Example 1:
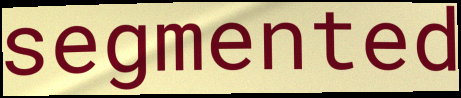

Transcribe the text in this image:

segmented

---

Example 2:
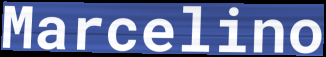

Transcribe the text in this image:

Marcelino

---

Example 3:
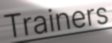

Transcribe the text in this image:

Trainers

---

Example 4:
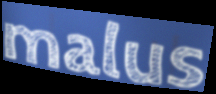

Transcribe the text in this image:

malus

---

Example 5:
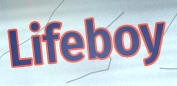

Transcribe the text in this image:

Lifeboy